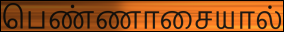
பெண்ணாசையால்